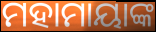
ମହାମାୟାଙ୍କ